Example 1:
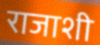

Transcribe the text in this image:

राजाशी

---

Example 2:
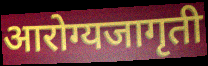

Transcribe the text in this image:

आरोग्यजागृती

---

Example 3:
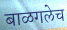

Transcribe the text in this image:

बाळगलेच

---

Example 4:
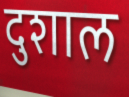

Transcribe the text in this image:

दुशाल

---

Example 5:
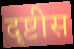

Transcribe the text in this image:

दृष्टीस